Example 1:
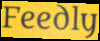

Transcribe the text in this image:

Feedly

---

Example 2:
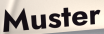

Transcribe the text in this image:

Muster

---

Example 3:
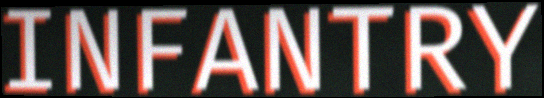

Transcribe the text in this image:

INFANTRY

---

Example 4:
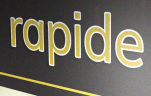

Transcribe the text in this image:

rapide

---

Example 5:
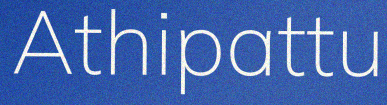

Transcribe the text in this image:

Athipattu